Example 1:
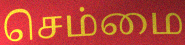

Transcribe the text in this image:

செம்மை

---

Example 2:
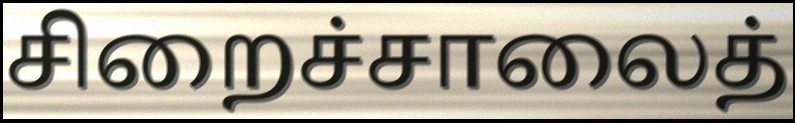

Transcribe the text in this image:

சிறைச்சாலைத்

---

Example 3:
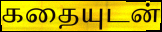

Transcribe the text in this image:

கதையுடன்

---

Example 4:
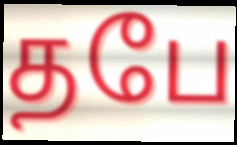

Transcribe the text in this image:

தபே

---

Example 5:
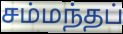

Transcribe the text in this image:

சம்மந்தப்